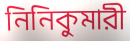
নিনিকুমারী